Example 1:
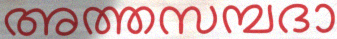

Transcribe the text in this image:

അത്തസമ്പദാ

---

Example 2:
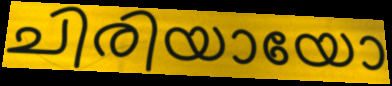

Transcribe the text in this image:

ചിരിയായോ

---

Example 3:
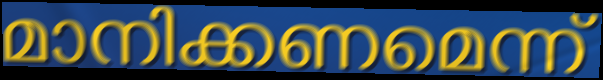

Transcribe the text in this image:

മാനിക്കണമെന്ന്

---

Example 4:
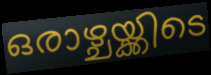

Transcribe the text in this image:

ഒരാഴ്ചയ്ക്കിടെ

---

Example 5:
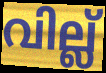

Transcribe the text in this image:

വില്ല്